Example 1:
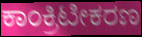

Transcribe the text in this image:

ಕಾಂಕ್ರಿಟೀಕರಣ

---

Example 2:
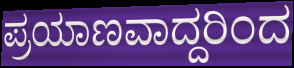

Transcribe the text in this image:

ಪ್ರಯಾಣವಾದ್ದರಿಂದ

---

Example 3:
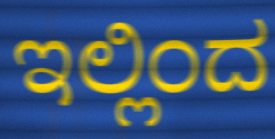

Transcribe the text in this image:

ಇಲ್ಲಿಂದ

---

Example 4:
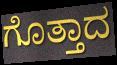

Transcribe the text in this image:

ಗೊತ್ತಾದ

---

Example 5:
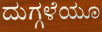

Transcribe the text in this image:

ದುಗ್ಗಳೆಯೂ